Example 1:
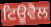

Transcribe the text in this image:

ਟਿਊਵੈਲ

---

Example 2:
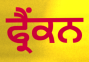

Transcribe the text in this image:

ਫ੍ਰੈਂਕਨ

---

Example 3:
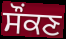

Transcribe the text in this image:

ਸੌਂਕਣ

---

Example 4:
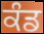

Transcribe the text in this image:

ਕੰਡ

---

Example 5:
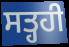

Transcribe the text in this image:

ਸਤ੍ਹਹੀ